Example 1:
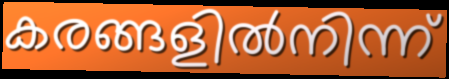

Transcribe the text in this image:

കരങ്ങളിൽനിന്ന്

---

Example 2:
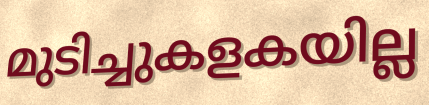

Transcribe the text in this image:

മുടിച്ചുകളകയില്ല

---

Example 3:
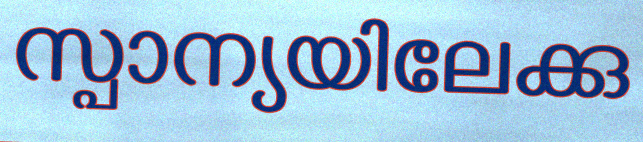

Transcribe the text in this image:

സ്പാന്യയിലേക്കു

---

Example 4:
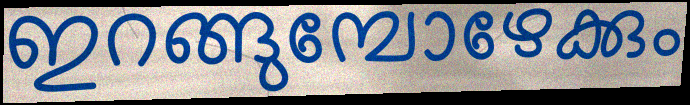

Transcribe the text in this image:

ഇറങ്ങുമ്പോഴേക്കും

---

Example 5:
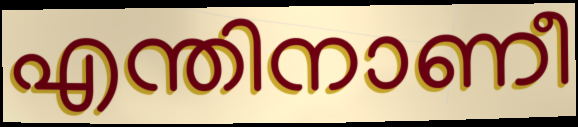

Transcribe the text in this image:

എന്തിനാണീ